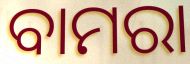
ବାମରା